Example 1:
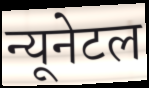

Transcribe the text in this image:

न्यूनेटल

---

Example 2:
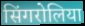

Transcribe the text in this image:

सिंगरोलिया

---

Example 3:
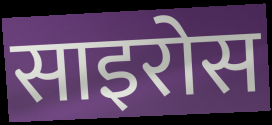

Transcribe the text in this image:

साइरोस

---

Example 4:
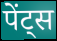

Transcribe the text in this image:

पेंट्स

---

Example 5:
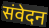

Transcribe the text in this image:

संवेदन